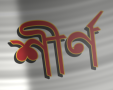
শীর্ণ